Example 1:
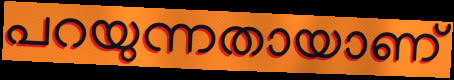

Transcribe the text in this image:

പറയുന്നതായാണ്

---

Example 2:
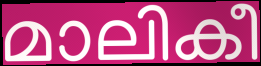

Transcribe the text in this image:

മാലികീ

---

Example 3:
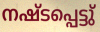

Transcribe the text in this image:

നഷ്ടപ്പെട്ടു്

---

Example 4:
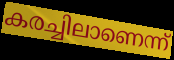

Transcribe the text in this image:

കരച്ചിലാണെന്ന്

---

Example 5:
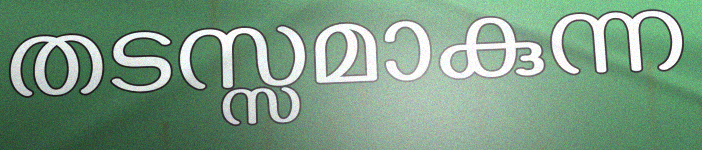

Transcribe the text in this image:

തടസ്സമാകുന്ന